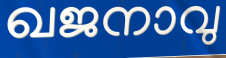
ഖജനാവു